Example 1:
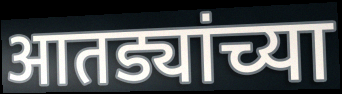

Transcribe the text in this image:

आतड्यांच्या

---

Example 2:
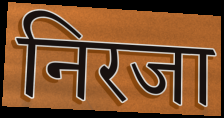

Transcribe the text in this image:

निरजा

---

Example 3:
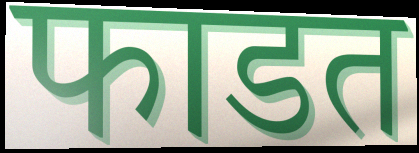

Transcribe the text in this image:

फाडत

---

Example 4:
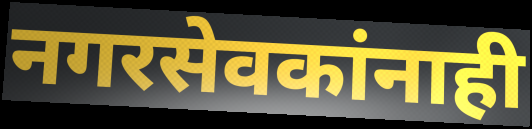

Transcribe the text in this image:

नगरसेवकांनाही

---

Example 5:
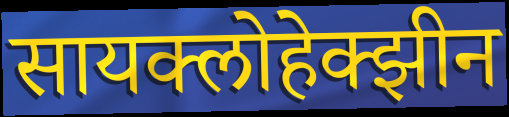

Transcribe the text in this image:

सायक्लोहेक्झीन